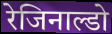
रेजिनाल्डो